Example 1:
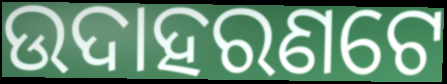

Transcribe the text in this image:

ଉଦାହରଣଟେ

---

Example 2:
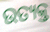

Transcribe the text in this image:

ଉତ୍ୟକ୍ତ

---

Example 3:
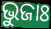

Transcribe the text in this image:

ଭୁଜାଃ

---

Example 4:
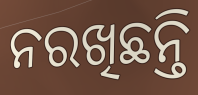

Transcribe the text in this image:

ନରଖିଛନ୍ତି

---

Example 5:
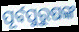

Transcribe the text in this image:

ପୂର୍ବପୁରୁଷଙ୍କ